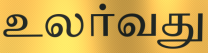
உலர்வது